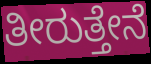
ತೀರುತ್ತೇನೆ